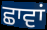
ਛਾਵਾਂ